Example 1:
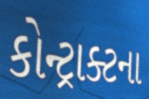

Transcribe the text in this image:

કોન્ટ્રાક્ટના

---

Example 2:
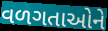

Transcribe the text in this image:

વળગતાઓને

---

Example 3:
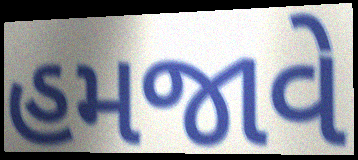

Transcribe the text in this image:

હમજાવે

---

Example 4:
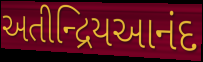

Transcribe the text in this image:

અતીન્દ્રિયઆનંદ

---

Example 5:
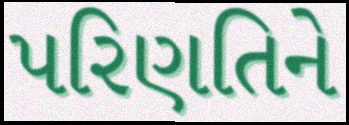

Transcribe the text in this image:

પરિણતિને